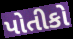
પોતીકો